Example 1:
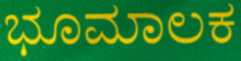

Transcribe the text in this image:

ಭೂಮಾಲಕ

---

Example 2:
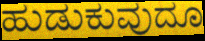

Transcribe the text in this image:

ಹುಡುಕುವುದೂ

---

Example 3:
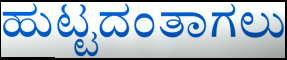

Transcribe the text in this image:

ಹುಟ್ಟದಂತಾಗಲು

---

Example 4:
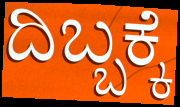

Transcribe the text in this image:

ದಿಬ್ಬಕ್ಕೆ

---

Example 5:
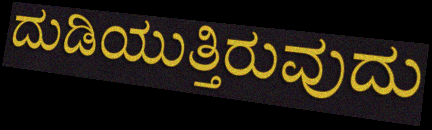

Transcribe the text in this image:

ದುಡಿಯುತ್ತಿರುವುದು